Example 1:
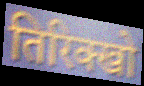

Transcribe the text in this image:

तिरिक्खो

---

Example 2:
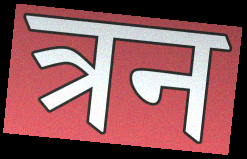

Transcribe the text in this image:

त्रन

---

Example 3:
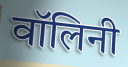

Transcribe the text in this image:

वॉलिनी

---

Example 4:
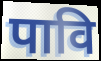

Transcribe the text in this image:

पावि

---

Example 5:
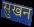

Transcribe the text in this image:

सुखन